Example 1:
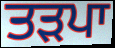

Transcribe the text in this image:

ਤੜਪਾ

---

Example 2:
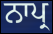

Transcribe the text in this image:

ਨਾਪ੍ਰ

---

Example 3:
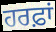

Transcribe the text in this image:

ਹਰਫ਼ਾਂ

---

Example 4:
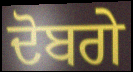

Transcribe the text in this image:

ਦੋਬਗੇ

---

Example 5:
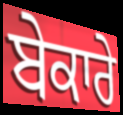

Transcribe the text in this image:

ਬੇਕਾਰੇ